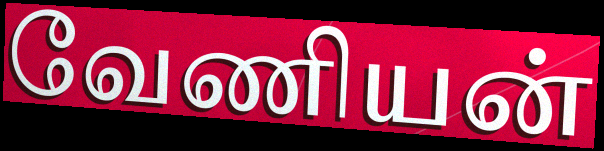
வேணியன்